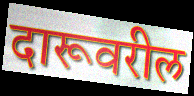
दारूवरील